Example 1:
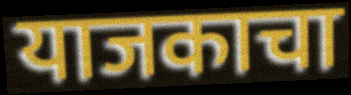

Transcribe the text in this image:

याजकाचा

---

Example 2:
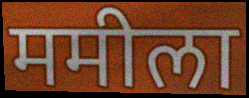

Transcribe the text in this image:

ममीला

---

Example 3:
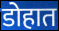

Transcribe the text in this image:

डोहात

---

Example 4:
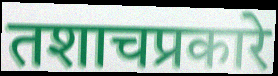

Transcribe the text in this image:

तशाचप्रकारे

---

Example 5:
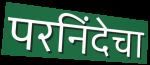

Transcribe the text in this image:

परनिंदेचा